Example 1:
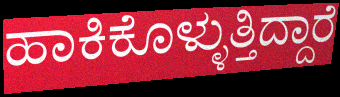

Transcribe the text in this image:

ಹಾಕಿಕೊಳ್ಳುತ್ತಿದ್ದಾರೆ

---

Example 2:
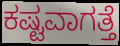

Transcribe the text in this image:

ಕಷ್ಟವಾಗತ್ತೆ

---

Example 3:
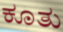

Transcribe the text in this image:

ಕೂತು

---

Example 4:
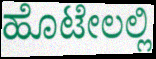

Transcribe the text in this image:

ಹೊಟೇಲಲ್ಲಿ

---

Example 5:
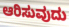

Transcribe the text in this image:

ಆರಿಸುವುದು